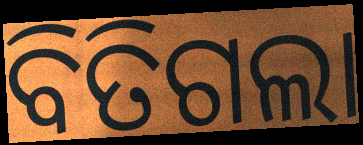
ବିତିଗଲା